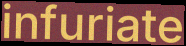
infuriate